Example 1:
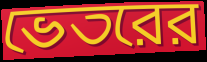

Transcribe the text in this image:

ভেতরের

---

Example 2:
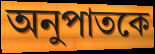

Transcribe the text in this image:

অনুপাতকে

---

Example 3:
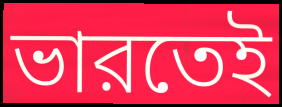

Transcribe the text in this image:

ভারতেই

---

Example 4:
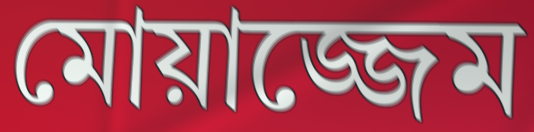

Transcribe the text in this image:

মোয়াজ্জেম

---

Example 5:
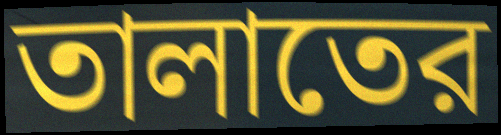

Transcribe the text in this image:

তালাতের